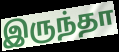
இருந்தா